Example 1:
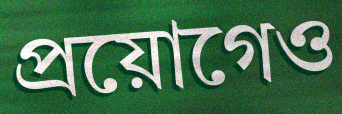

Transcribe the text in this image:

প্রয়োগেও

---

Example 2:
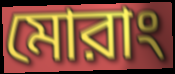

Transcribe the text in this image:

মোরাং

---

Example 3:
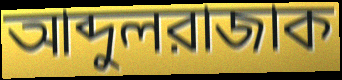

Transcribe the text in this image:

আব্দুলরাজাক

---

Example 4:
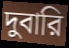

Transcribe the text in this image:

দুবারি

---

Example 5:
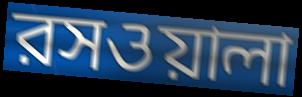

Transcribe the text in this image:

রসওয়ালা